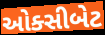
ઓક્સીબેટ